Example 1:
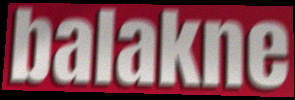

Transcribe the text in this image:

balakne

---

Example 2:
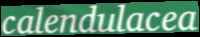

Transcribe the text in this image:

calendulacea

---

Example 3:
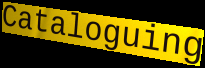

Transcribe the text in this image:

Cataloguing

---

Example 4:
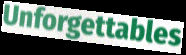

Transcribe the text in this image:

Unforgettables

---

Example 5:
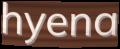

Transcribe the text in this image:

hyena